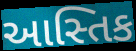
આસ્તિક